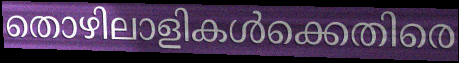
തൊഴിലാളികൾക്കെതിരെ